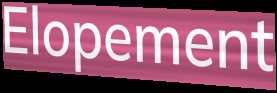
Elopement